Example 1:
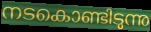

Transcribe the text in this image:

നടകൊണ്ടിടുന്നു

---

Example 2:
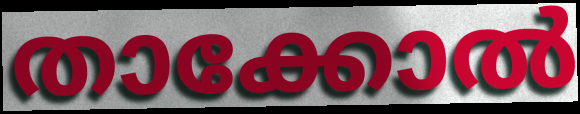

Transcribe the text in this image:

താക്കോൽ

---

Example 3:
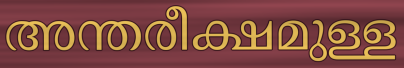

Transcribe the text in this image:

അന്തരീക്ഷമുള്ള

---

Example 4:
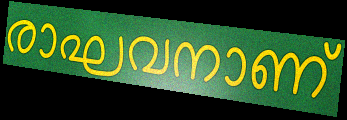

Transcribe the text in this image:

രാഘവനാണ്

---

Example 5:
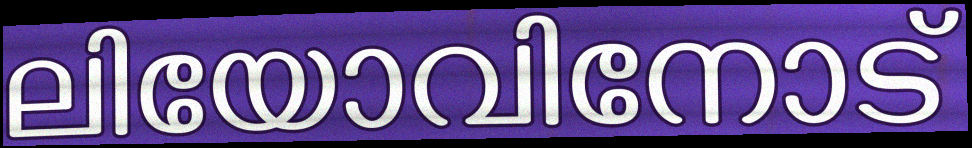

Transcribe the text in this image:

ലിയോവിനോട്